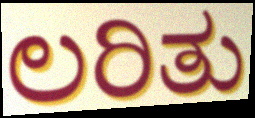
ಲರಿತು